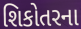
શિકોતરના